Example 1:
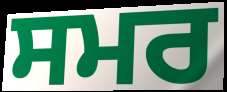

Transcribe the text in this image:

ਸਮਰ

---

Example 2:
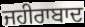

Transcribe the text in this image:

ਜਹੀਰਾਬਾਦ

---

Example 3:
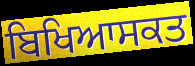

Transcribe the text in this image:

ਬਿਖਿਆਸਕਤ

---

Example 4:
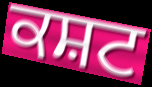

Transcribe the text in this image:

ਕਸ਼ਟ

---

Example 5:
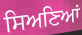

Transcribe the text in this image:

ਸਿਅਣਿਆਂ